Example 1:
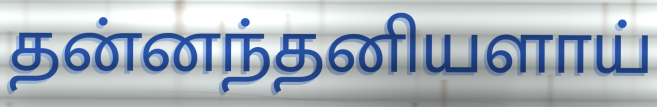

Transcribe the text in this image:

தன்னந்தனியளாய்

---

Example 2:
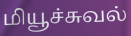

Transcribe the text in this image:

மியூச்சுவல்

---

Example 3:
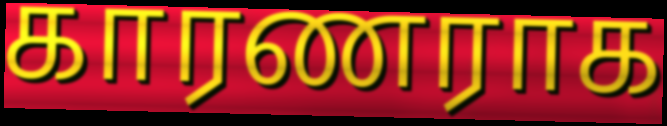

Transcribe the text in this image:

காரணராக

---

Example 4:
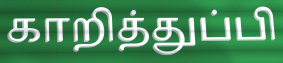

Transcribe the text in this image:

காறித்துப்பி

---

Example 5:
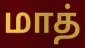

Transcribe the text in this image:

மாத்